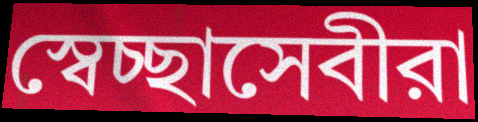
স্বেচ্ছাসেবীরা